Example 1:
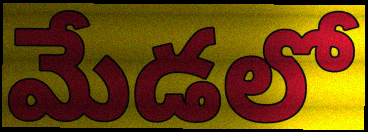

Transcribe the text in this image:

మేడలో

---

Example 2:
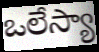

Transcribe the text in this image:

ఒలేస్యా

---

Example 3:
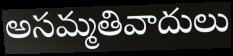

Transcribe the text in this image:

అసమ్మతివాదులు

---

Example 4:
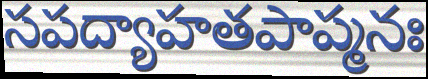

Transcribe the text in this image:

సపద్యాహతపాప్మనః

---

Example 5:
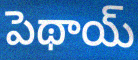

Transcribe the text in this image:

పెథాయ్